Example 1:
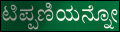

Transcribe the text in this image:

ಟಿಪ್ಪಣಿಯನ್ನೋ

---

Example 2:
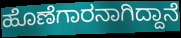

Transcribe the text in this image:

ಹೊಣೆಗಾರನಾಗಿದ್ದಾನೆ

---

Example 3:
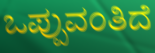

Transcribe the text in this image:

ಒಪ್ಪುವಂತಿದೆ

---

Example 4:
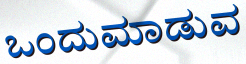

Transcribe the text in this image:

ಒಂದುಮಾಡುವ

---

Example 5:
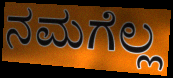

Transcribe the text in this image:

ನಮಗೆಲ್ಲ